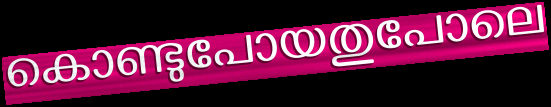
കൊണ്ടുപോയതുപോലെ